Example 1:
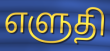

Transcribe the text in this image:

எளுதி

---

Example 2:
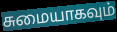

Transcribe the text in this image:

சுமையாகவும்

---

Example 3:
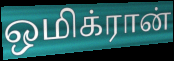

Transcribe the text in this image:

ஒமிக்ரான்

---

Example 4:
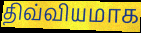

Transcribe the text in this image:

திவ்வியமாக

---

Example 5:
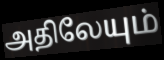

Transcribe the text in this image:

அதிலேயும்